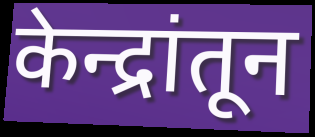
केन्द्रांतून